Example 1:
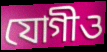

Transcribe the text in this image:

যোগীও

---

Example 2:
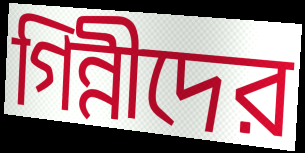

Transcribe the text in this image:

গিন্নীদের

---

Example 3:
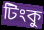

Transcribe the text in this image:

টিংকু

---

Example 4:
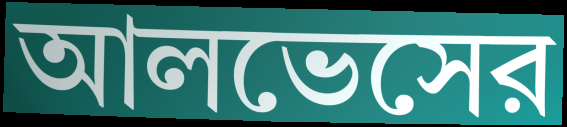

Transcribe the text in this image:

আলভেসের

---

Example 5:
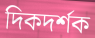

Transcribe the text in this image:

দিকদর্শক